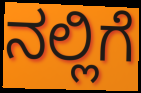
ನಲ್ಲಿಗೆ